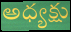
అధ్యక్షు